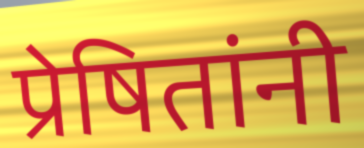
प्रेषितांनी